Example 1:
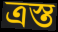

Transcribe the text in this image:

ত্রস্ত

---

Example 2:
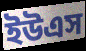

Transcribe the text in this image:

ইউএস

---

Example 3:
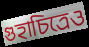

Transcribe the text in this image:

গুহাচিত্রেও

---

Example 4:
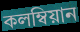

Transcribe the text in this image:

কলম্বিয়ান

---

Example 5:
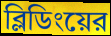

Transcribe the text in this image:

ব্লিডিংয়ের